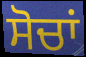
ਸੋਚਾਂ